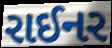
રાઈનર